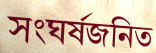
সংঘর্ষজনিত